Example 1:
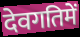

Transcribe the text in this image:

देवगतिमें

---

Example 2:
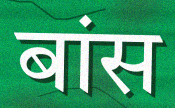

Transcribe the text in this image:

बांस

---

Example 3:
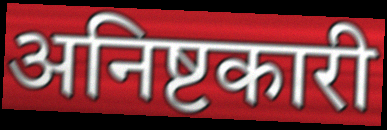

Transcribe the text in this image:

अनिष्टकारी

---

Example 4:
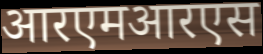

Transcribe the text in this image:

आरएमआरएस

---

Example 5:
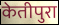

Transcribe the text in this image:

केतीपुरा